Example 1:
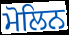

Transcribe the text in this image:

ਮੋਲਿਨ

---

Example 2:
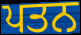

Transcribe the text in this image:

ਪਤਨ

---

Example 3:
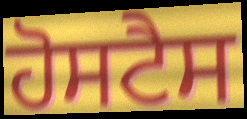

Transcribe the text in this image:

ਹੋਸਟੈਸ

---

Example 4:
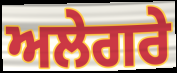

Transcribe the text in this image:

ਅਲੇਗਰੇ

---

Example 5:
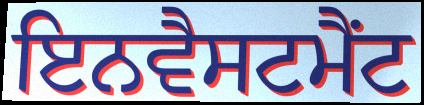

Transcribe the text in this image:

ਇਨਵੈਸਟਮੈਂਟ